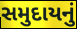
સમુદાયનું